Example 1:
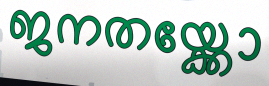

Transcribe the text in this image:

ജനതയ്ക്കോ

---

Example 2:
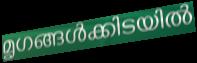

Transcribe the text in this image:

മൃഗങ്ങൾക്കിടയിൽ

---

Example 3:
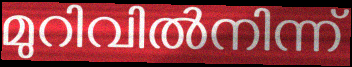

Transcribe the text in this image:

മുറിവിൽനിന്ന്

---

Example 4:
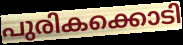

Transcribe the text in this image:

പുരികക്കൊടി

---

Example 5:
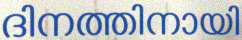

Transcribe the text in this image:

ദിനത്തിനായി